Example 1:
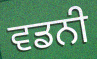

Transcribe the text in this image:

ਵਡਨੀ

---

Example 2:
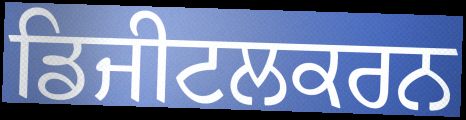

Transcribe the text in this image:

ਡਿਜੀਟਲਕਰਨ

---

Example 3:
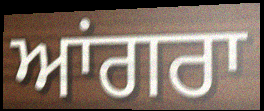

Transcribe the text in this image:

ਆਂਗਰਾ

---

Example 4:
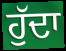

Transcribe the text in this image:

ਹੁੱਦਾ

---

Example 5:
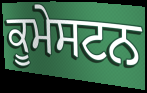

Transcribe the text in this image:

ਕੂਮੇਸਟਨ